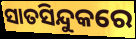
ସାତସିନ୍ଦୁକରେ